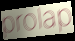
prolap